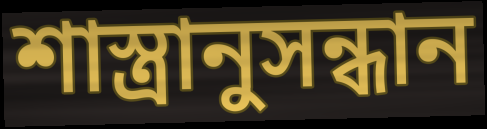
শাস্ত্রানুসন্ধান